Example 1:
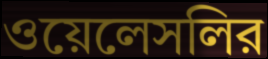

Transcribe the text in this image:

ওয়েলেসলির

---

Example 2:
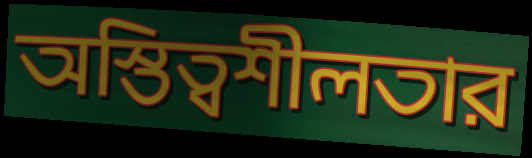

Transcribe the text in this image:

অস্তিত্বশীলতার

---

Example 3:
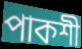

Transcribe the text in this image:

পাকশী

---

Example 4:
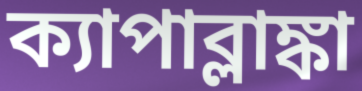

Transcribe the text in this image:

ক্যাপাব্লাঙ্কা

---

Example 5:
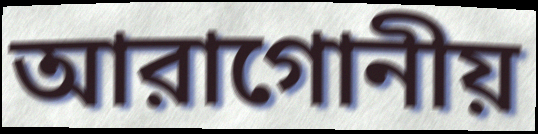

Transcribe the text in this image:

আরাগোনীয়